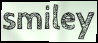
smiley